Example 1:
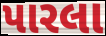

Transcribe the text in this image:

પારલા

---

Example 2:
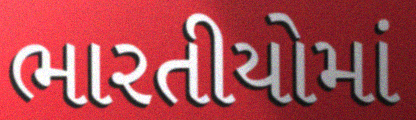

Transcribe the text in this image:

ભારતીયોમાં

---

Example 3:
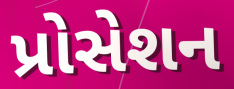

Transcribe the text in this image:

પ્રોસેશન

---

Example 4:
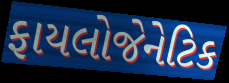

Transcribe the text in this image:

ફાયલોજેનેટિક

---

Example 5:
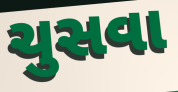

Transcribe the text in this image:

ચુસવા